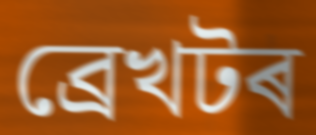
ব্ৰেখটৰ